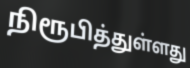
நிரூபித்துள்ளது